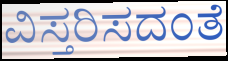
ವಿಸ್ತರಿಸದಂತೆ